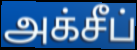
அக்சீப்